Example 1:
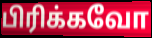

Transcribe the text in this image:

பிரிக்கவோ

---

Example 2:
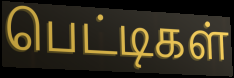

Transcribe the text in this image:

பெட்டிகள்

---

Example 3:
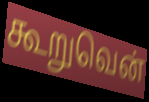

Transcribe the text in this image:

கூறுவென்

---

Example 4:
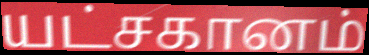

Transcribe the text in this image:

யட்சகானம்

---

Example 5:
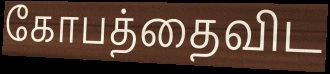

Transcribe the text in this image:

கோபத்தைவிட